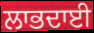
ਲਾਭਦਾਈ